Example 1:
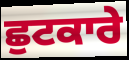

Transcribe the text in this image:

ਛੁਟਕਾਰੇ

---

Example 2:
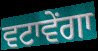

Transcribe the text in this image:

ਵਟਾਵੇਂਗਾ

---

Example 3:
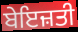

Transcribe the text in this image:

ਬੇਇਜ਼ਤੀ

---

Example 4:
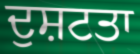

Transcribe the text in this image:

ਦੁਸ਼ਟਤਾ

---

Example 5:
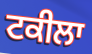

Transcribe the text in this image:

ਟਕੀਲਾ